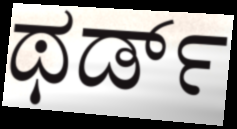
ಥರ್ಡ್